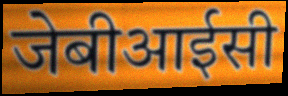
जेबीआईसी